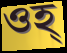
ওহ্